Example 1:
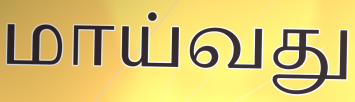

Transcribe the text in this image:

மாய்வது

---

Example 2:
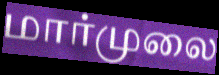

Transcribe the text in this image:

மார்முலை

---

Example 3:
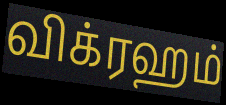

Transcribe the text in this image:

விக்ரஹம்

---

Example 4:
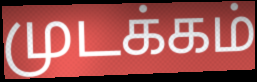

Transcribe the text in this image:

முடக்கம்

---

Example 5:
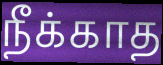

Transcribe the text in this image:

நீக்காத